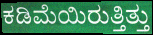
ಕಡಿಮೆಯಿರುತ್ತಿತ್ತು